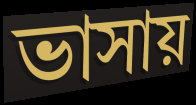
ভাসায়